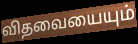
விதவையையும்